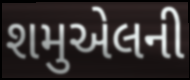
શમુએલની